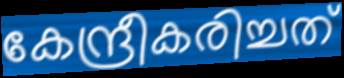
കേന്ദ്രീകരിച്ചത്